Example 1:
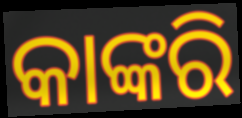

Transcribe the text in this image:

କାଙ୍କରି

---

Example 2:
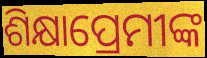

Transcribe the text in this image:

ଶିକ୍ଷାପ୍ରେମୀଙ୍କ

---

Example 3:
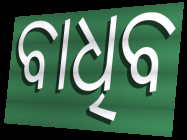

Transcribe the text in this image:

ବାଧିବ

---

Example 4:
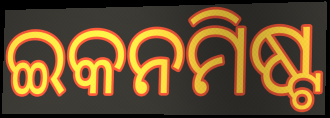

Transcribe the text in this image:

ଇକନମିଷ୍ଟ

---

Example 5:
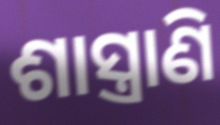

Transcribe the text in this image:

ଶାସ୍ତ୍ରାଣି